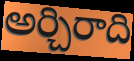
అర్చిరాది